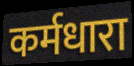
कर्मधारा